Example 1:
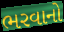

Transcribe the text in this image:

ભરવાનો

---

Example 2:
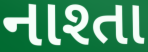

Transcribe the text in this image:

નાશ્તા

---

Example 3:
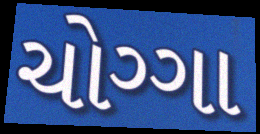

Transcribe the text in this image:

ચોગ્ગા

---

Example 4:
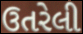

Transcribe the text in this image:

ઉતરેલી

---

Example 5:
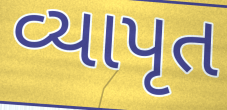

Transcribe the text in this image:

વ્યાપૃત